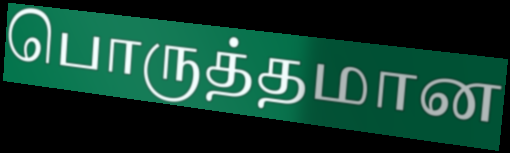
பொருத்தமான